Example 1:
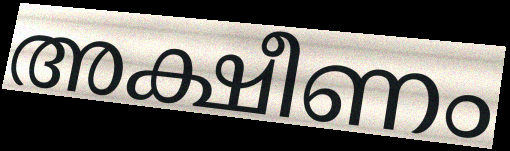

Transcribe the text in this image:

അക്ഷീണം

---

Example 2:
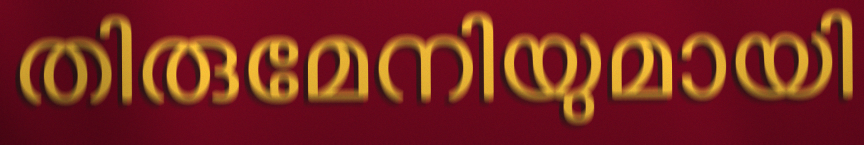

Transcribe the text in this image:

തിരുമേനിയുമായി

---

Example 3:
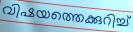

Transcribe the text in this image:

വിഷയത്തെക്കുറിച്ച്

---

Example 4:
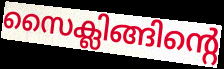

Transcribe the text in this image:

സൈക്ലിങ്ങിന്റെ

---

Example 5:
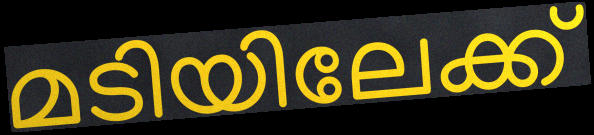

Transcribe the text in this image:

മടിയിലേക്ക്